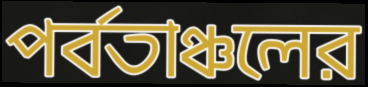
পর্বতাঞ্চলের